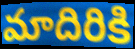
మాదిరికి